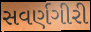
સવર્ણગીરી